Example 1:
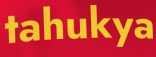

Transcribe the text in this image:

tahukya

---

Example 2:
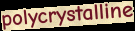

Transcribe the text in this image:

polycrystalline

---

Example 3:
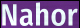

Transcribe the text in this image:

Nahor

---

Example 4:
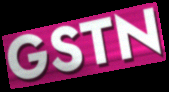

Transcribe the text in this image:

GSTN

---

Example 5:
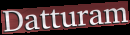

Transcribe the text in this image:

Datturam